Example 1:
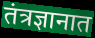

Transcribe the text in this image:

तंत्रज्ञानात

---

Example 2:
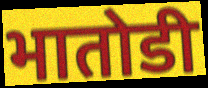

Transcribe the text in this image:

भातोडी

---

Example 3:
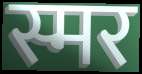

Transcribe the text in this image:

स्मर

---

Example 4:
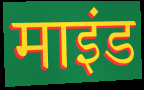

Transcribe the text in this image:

माइंड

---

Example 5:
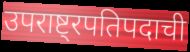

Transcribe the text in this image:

उपराष्ट्रपतिपदाची